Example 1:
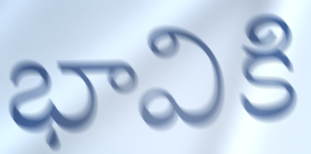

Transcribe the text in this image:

భావికి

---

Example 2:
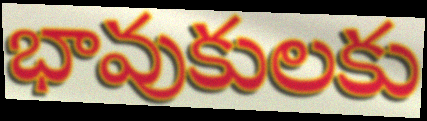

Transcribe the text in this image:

భావుకులకు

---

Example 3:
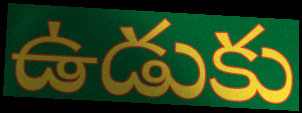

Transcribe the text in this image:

ఉడుకు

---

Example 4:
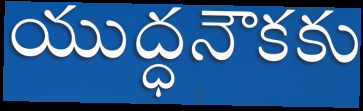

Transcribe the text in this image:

యుద్ధనౌకకు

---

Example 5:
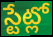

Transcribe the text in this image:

స్టేట్లో